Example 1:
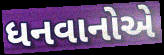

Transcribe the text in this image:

ધનવાનોએ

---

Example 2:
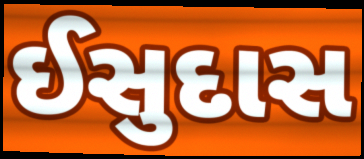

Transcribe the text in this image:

ઈસુદાસ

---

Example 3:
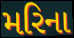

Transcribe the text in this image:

મરિના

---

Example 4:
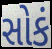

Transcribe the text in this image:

સોકં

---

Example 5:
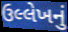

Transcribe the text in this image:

ઉલ્લેખનું